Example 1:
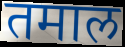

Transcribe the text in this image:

तमाल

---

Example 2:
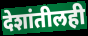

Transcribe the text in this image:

देशांतीलही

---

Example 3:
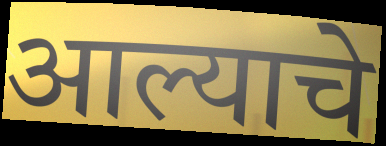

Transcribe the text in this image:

आल्याचे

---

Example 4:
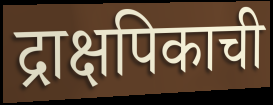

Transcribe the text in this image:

द्राक्षपिकाची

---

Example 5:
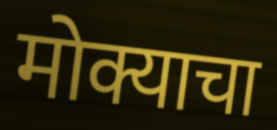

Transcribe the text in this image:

मोक्याचा